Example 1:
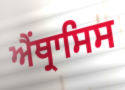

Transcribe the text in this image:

ਐਂਥ੍ਰਾਸਿਸ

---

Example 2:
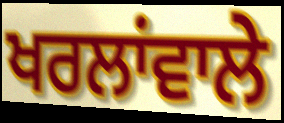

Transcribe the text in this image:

ਖਰਲਾਂਵਾਲੇ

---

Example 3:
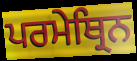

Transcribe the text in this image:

ਪਰਮੇਥ੍ਰਿਨ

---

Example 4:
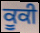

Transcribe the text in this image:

ਕੂਕੀ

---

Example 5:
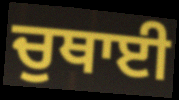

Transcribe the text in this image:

ਚੁਥਾਈ